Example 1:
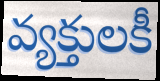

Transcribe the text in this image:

వ్యక్తులకీ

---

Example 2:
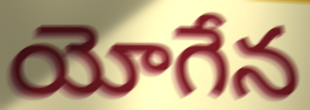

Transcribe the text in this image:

యోగేన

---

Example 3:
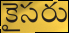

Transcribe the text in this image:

కైసరు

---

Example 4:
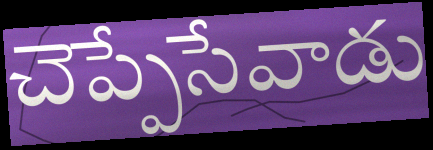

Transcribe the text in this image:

చెప్పేసేవాడు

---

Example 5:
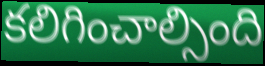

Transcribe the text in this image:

కలిగించాల్సింది